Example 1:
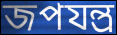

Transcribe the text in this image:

জপযন্ত্র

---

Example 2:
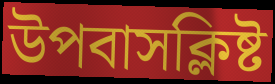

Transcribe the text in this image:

উপবাসক্লিষ্ট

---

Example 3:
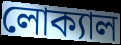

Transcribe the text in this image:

লোক্যাল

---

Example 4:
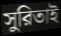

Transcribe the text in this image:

সুরিতাই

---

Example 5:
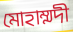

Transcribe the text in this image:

মোহাম্মদী